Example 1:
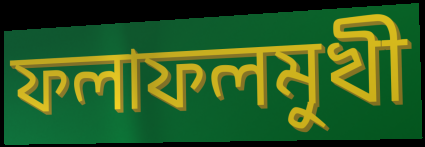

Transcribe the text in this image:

ফলাফলমুখী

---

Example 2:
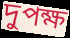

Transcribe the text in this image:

দুপক্ষ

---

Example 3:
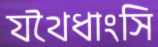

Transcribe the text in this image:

যথৈধাংসি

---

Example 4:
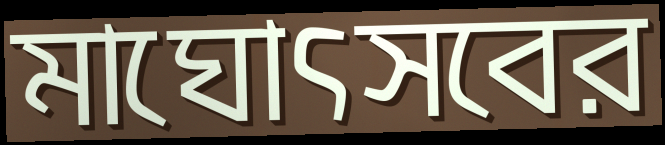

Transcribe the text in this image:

মাঘোৎসবের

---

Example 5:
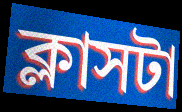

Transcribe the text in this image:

ক্লাসটা